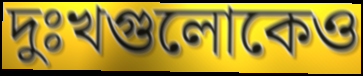
দুঃখগুলোকেও